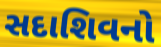
સદાશિવનો